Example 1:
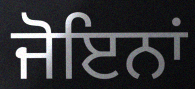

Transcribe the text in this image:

ਜੋਇਨਾਂ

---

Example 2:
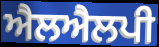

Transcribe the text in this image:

ਐਲਐਲਪੀ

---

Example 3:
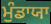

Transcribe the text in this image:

ਮੁੰਡਾਯਾ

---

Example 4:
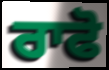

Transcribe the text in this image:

ਰਾਫੋ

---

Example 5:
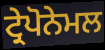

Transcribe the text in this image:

ਟ੍ਰੇਪੋਨੇਮਲ